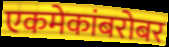
एकमेकांबरोबर